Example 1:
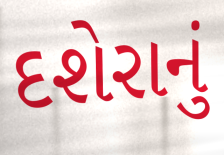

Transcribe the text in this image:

દશેરાનું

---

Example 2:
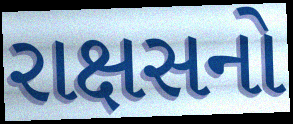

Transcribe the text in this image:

રાક્ષસનો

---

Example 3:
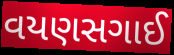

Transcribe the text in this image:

વયણસગાઈ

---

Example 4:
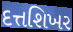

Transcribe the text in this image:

દત્તશિખર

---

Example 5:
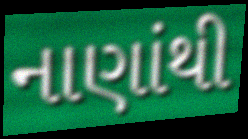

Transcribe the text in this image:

નાણાંથી